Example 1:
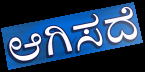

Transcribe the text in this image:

ಆಗಿಸದೆ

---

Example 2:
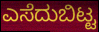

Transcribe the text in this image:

ಎಸೆದುಬಿಟ್ಟ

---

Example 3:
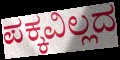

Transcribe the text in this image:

ಪಕ್ಕವಿಲ್ಲದ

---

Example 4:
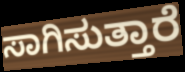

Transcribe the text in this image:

ಸಾಗಿಸುತ್ತಾರೆ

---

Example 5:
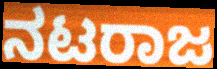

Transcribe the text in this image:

ನಟರಾಜ